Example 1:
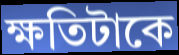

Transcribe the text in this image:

ক্ষতিটাকে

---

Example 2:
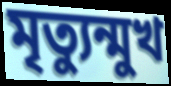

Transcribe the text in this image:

মৃত্যুন্মুখ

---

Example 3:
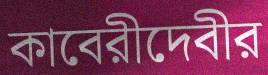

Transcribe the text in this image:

কাবেরীদেবীর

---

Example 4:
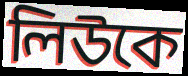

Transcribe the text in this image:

লিউকে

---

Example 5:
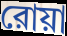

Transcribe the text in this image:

রোয়া